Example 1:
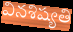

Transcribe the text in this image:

వినశిష్యతి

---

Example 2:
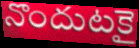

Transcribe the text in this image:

నొందుటకై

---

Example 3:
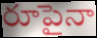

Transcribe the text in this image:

రూపైనా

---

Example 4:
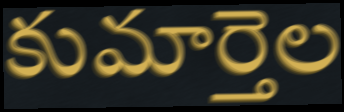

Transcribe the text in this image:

కుమార్తెల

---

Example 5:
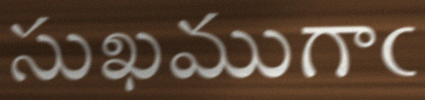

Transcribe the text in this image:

సుఖముగాఁ